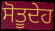
ਸੋਤੂਦੇਹ